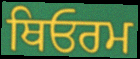
ਥਿਓਰਮ